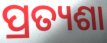
ପ୍ରତ୍ୟଶା